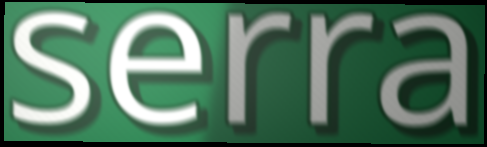
serra